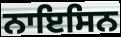
ਨਾਇਸਿਨ